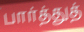
பார்த்துத்